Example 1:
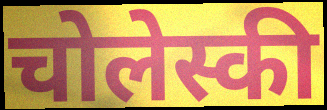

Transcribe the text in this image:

चोलेस्की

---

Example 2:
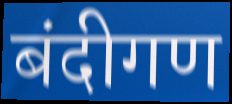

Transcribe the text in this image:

बंदीगण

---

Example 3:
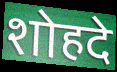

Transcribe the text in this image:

शोहदे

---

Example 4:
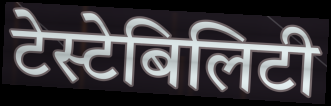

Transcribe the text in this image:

टेस्टेबिलिटी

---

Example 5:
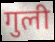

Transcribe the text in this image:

गुली